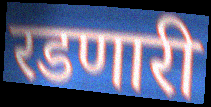
रडणारी